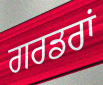
ਗਰਡਰਾਂ